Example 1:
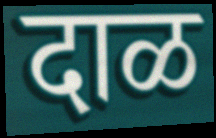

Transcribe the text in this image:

दाळ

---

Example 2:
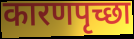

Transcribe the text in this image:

कारणपृच्छा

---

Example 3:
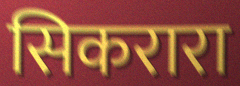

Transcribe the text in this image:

सिकरारा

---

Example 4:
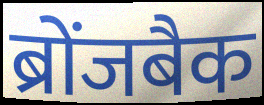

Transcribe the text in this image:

ब्रोंजबैक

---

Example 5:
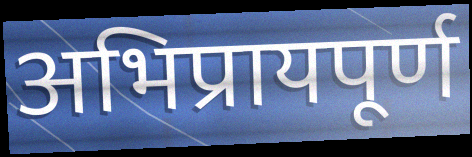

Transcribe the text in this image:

अभिप्रायपूर्ण